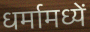
धर्मामध्यें